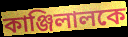
কাঞ্জিলালকে